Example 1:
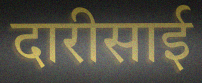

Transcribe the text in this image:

दारीसाई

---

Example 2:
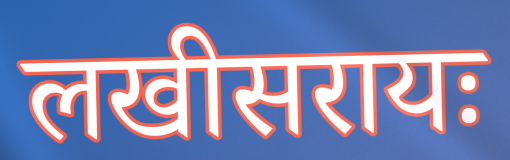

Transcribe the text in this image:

लखीसरायः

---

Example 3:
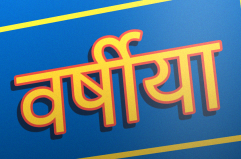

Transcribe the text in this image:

वर्षीया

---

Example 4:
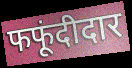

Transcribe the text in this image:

फफूंदीदार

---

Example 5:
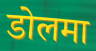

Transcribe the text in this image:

डोलमा